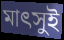
মাৎসুই